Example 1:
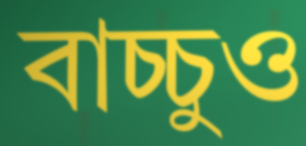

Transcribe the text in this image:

বাচ্চুও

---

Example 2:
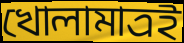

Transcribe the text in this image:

খোলামাত্রই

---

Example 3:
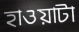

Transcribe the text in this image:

হাওয়াটা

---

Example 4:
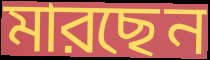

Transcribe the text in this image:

মারছেন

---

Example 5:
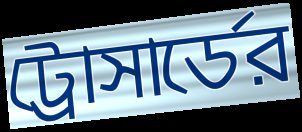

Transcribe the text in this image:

ট্রোসার্ডের